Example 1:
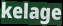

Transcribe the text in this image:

kelage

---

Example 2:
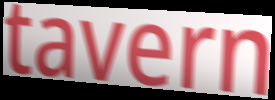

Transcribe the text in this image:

tavern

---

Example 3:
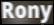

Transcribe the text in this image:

Rony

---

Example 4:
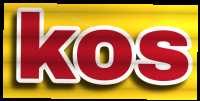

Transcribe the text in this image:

kos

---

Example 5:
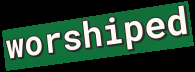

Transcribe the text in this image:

worshiped